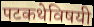
पटकथेविषयी